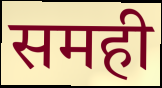
समही